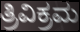
ತ್ರಿವಿಕ್ರಮ